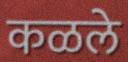
कळले